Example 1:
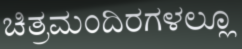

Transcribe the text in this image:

ಚಿತ್ರಮಂದಿರಗಳಲ್ಲೂ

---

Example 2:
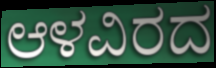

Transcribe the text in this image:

ಆಳವಿರದ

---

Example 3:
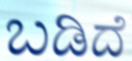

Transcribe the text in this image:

ಬಡಿದೆ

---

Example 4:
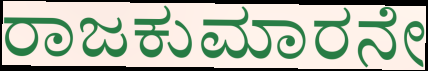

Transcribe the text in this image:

ರಾಜಕುಮಾರನೇ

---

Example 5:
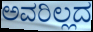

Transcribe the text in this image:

ಅವರಿಲ್ಲದ